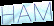
HAM